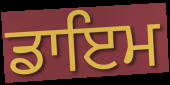
ਡਾਇਮ